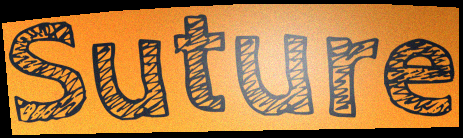
Suture